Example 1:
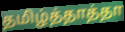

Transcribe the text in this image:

தமிழ்த்தாத்தா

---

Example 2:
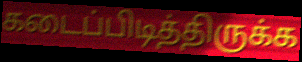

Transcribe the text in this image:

கடைப்பிடித்திருக்க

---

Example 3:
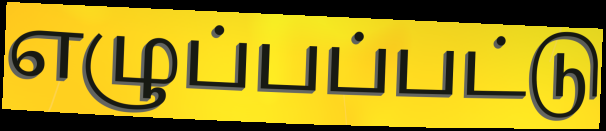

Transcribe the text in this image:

எழுப்பப்பட்டு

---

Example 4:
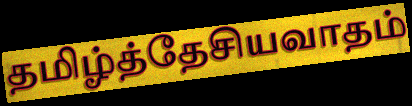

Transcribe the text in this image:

தமிழ்த்தேசியவாதம்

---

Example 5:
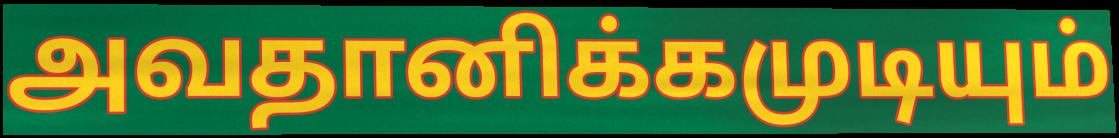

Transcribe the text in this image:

அவதானிக்கமுடியும்